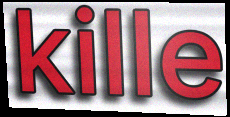
kille